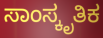
ಸಾಂಸ್ಕೃತಿಕ